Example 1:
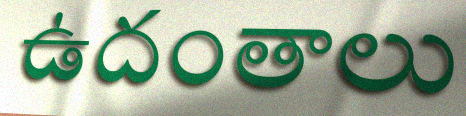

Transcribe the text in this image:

ఉదంతాలు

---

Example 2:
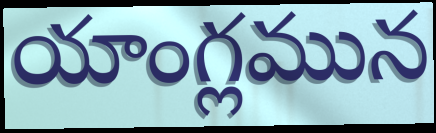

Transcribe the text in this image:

యాంగ్లమున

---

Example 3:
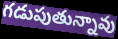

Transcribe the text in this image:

గడుపుతున్నావు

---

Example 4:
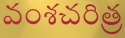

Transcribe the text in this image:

వంశచరిత్ర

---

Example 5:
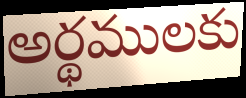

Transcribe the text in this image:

అర్థములకు